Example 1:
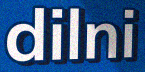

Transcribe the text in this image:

dilni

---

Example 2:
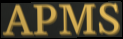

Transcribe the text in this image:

APMS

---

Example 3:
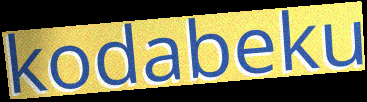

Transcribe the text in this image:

kodabeku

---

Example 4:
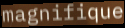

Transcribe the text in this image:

magnifique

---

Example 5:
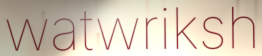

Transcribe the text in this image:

watwriksh